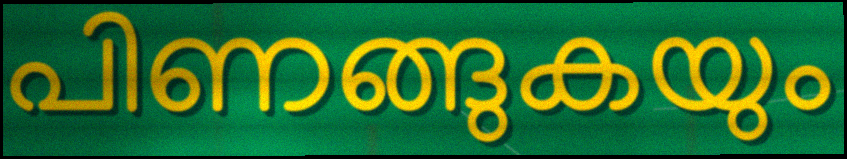
പിണങ്ങുകയും